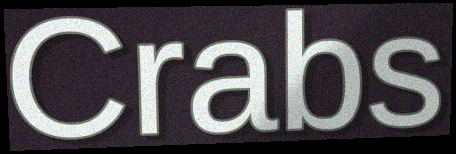
Crabs